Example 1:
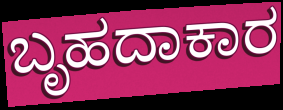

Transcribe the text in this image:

ಬೃಹದಾಕಾರ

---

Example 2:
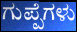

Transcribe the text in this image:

ಗುಪ್ಪೆಗಳು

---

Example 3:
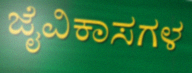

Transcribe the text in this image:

ಜೈವಿಕಾಸಗಳ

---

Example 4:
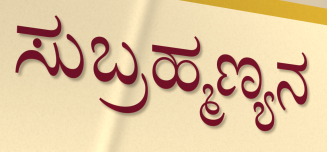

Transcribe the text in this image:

ಸುಬ್ರಹ್ಮಣ್ಯನ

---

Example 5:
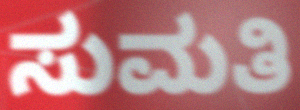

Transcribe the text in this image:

ಸುಮತಿ